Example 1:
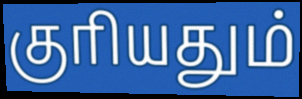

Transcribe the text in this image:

குரியதும்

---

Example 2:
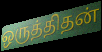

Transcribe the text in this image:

ஒருத்திதன்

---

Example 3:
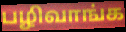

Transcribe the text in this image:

பழிவாங்க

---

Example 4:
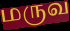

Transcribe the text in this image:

மருவ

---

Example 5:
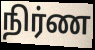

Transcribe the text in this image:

நிர்ண